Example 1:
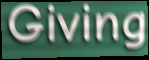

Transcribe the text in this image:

Giving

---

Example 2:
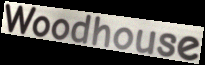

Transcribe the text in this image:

Woodhouse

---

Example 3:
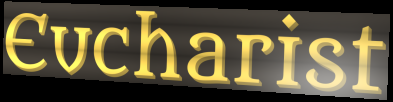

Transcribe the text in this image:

Eucharist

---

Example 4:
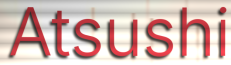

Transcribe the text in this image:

Atsushi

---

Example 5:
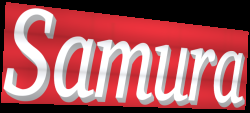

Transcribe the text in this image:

Samura